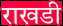
राखडी